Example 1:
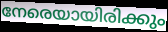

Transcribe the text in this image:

നേരെയായിരിക്കും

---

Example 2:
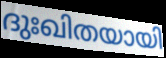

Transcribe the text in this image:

ദുഃഖിതയായി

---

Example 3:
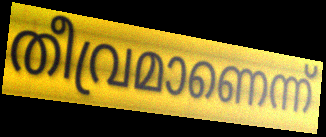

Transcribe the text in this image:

തീവ്രമാണെന്ന്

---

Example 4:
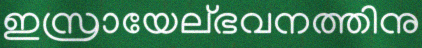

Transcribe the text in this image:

ഇസ്രായേല്ഭവനത്തിനു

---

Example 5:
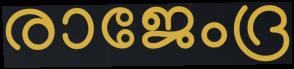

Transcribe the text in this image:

രാജേംദ്ര